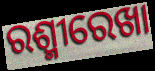
ରଶ୍ମୀରେଖା